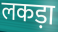
लकड़ा